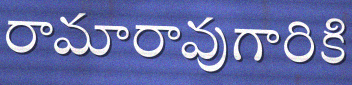
రామారావుగారికి